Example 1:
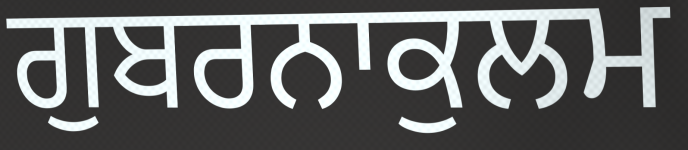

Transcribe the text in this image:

ਗੁਬਰਨਾਕੁਲਮ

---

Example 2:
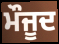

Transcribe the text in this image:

ਮੌਜੂਦ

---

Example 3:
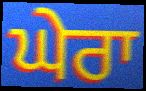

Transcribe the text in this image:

ਘੇਰਾ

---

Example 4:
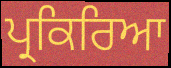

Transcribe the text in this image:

ਪ੍ਰਕਿਰਿਆ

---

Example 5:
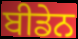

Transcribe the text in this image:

ਬੀਡੇਨ